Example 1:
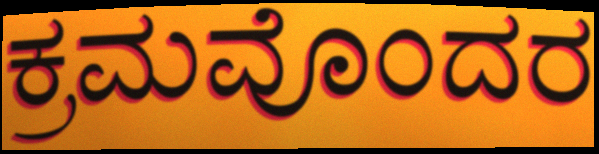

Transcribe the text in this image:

ಕ್ರಮವೊಂದರ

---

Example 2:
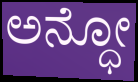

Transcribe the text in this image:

ಅನ್ಧೋ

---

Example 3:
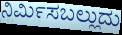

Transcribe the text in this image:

ನಿರ್ಮಿಸಬಲ್ಲುದು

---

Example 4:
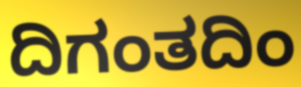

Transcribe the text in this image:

ದಿಗಂತದಿಂ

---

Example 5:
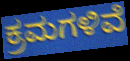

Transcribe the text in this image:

ಕ್ರಮಗಳಿವೆ